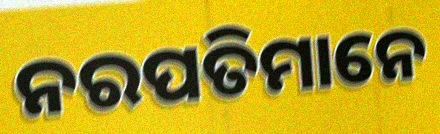
ନରପତିମାନେ